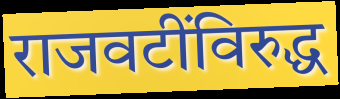
राजवटींविरुद्ध